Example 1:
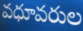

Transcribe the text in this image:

వధూవరుల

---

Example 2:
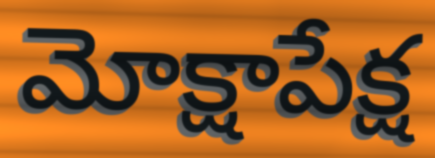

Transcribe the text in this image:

మోక్షాపేక్ష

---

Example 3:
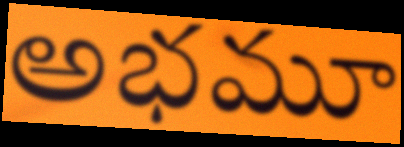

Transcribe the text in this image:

అభమూ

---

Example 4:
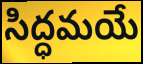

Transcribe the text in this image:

సిద్ధమయే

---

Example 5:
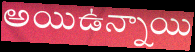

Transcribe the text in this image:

అయిఉన్నాయి